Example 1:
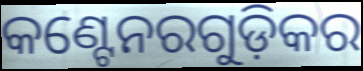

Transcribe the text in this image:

କଣ୍ଟେନରଗୁଡ଼ିକର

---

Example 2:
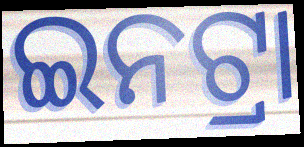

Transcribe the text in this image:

ଇନଟ୍ରା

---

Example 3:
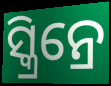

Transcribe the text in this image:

ସ୍କ୍ରିନ୍ରେ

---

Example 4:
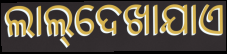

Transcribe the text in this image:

ଲାଲ୍‌ଦେଖାଯାଏ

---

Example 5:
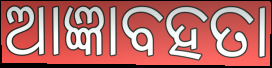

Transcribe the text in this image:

ଆଜ୍ଞାବହତା